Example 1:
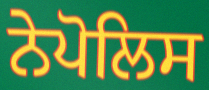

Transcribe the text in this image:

ਨੇਪੋਲਿਸ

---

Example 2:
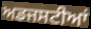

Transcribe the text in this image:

ਅਡਜਸਟੀਆਂ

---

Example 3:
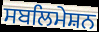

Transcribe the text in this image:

ਸਬਲਿਮੇਸ਼ਨ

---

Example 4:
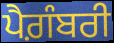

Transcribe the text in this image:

ਪੈਗ਼ੰਬਰੀ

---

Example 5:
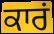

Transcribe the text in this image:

ਕਾਰਂ